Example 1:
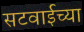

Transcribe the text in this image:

सटवाईच्या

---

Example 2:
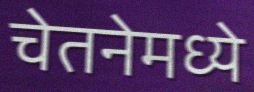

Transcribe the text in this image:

चेतनेमध्ये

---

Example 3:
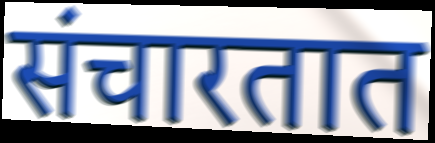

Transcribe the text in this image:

संचारतात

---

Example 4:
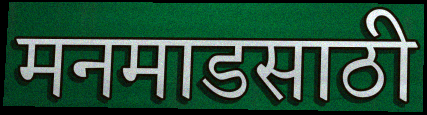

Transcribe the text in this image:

मनमाडसाठी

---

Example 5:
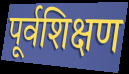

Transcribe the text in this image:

पूर्वशिक्षण